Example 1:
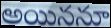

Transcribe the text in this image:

అయిననూ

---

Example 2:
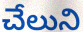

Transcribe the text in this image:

చేలుని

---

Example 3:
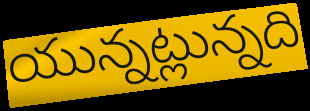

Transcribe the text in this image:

యున్నట్లున్నది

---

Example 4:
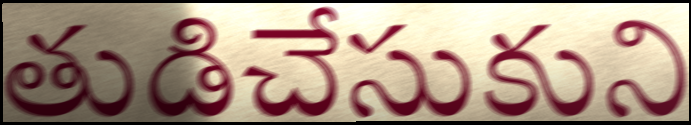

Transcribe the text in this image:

తుడిచేసుకుని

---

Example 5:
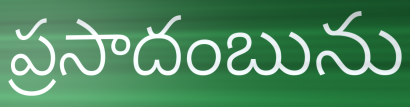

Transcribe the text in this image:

ప్రసాదంబును